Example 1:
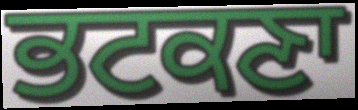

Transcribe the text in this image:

ਭਟਕਣਾ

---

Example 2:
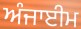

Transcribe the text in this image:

ਅੰਜਾਈਮ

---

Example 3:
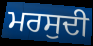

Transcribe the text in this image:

ਮਰਸੁਦੀ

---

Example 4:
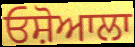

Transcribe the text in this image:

ਓਸ਼ੋਆਲਾ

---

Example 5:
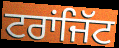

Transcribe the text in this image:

ਟਰਾਂਜਿੱਟ